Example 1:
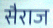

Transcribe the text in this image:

सैराज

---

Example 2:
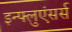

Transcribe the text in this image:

इन्फ्लुएंसर्स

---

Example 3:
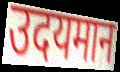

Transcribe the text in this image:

उदयमान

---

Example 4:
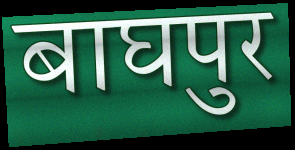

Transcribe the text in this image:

बाघपुर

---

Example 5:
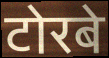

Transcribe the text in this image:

टोरबे